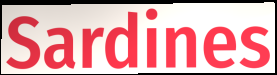
Sardines